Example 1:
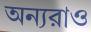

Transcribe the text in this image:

অন্যরাও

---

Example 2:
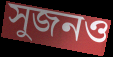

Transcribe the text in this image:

সুজনও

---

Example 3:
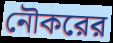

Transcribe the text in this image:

নৌকরের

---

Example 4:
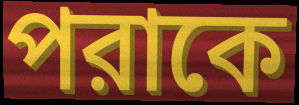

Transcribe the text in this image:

পরাকে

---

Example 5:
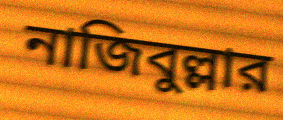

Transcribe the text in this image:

নাজিবুল্লার